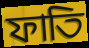
ফাতি